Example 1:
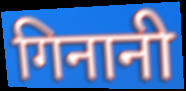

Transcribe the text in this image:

गिनानी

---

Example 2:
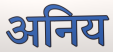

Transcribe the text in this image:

अनिय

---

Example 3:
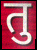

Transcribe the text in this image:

तु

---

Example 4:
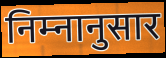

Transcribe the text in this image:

निम्नानुसार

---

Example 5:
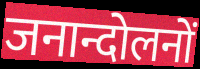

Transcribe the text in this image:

जनान्दोलनों